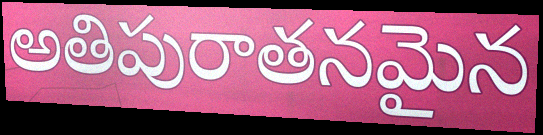
అతిపురాతనమైన